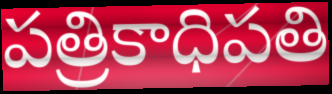
పత్రికాధిపతి